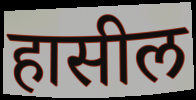
हासील